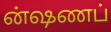
ன்ஷணப்